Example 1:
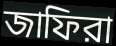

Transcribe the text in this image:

জাফিরা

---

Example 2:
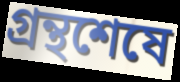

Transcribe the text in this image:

গ্রন্থশেষে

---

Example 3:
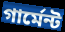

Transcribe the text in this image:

গার্মেন্ট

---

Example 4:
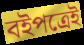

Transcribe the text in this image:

বইপত্রেই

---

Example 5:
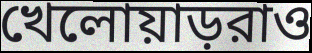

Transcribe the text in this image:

খেলোয়াড়রাও